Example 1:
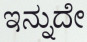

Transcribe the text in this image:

ಇನ್ನುದೇ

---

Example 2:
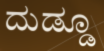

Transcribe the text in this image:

ದುಡ್ಡೂ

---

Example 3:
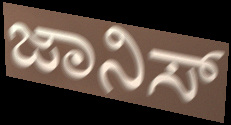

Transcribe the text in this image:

ಜಾನಿಸ್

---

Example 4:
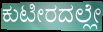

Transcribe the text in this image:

ಕುಟೀರದಲ್ಲೇ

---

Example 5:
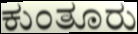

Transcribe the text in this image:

ಕುಂತೂರು